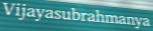
Vijayasubrahmanya